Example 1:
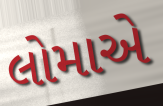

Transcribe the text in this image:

લોમાએ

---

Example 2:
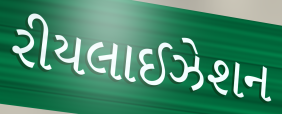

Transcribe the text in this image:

રીયલાઈઝેશન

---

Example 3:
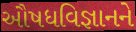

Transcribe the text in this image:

ઔષધવિજ્ઞાનને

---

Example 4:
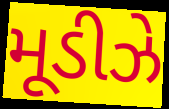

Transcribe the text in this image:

મૂડીઝે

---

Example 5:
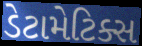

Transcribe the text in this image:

ડેટામેટિક્સ